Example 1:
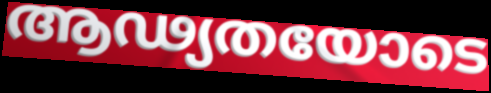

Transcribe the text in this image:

ആഢ്യതയോടെ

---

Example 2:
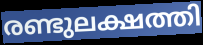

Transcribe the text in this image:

രണ്ടുലക്ഷത്തി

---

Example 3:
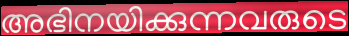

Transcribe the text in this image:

അഭിനയിക്കുന്നവരുടെ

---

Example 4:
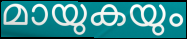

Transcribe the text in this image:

മായുകയും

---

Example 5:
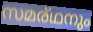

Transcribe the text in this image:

സമര്ഥനും